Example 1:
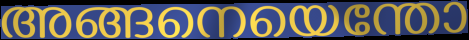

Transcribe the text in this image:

അങ്ങനെയെന്തോ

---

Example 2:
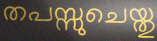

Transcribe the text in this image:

തപസ്സുചെയ്തു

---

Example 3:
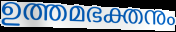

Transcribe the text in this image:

ഉത്തമഭക്തനും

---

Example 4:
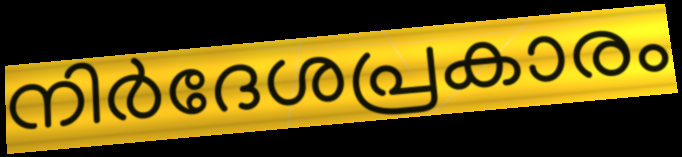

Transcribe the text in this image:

നിർദേശപ്രകാരം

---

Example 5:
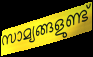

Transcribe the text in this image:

സാമ്യങ്ങളുണ്ട്